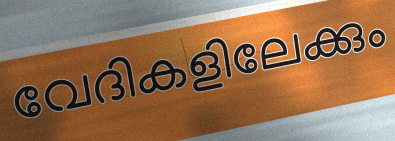
വേദികളിലേക്കും